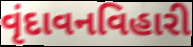
વૃંદાવનવિહારી